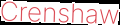
Crenshaw